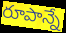
రూపాన్నే